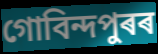
গোবিন্দপুৰৰ